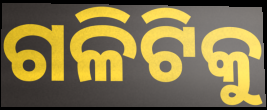
ଗଳିଟିକୁ